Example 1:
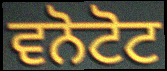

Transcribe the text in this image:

ਵਨੋਟੋਟ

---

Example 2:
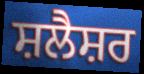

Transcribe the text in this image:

ਸ਼ਲੈਸ਼ਰ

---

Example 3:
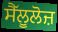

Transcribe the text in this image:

ਸੈੱਲੂਲੋਜ਼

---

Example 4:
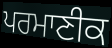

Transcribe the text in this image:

ਪਰਮਾਣੀਕ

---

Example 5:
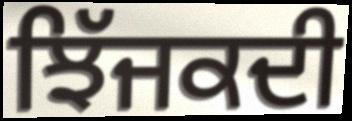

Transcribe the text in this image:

ਝਿੱਜਕਦੀ